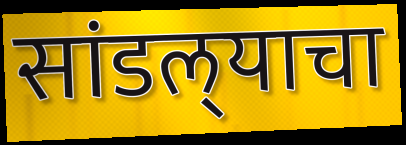
सांडल्याचा